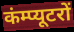
कंम्प्यूटरों